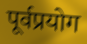
पूर्वप्रयोग